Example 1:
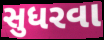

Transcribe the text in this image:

સુધરવા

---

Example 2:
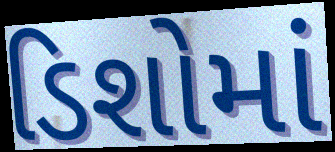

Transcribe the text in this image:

ડિશોમાં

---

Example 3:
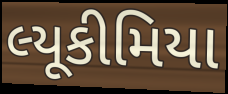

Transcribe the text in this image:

લ્યૂકીમિયા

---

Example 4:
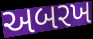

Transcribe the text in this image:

અબરખ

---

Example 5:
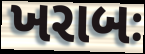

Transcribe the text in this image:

ખરાબઃ